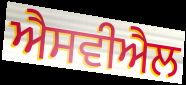
ਐਸਵੀਐਲ